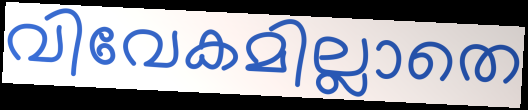
വിവേകമില്ലാതെ